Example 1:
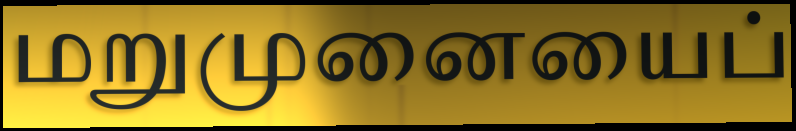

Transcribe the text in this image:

மறுமுனையைப்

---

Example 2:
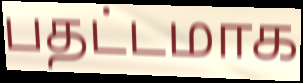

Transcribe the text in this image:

பதட்டமாக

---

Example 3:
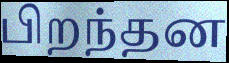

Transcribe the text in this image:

பிறந்தன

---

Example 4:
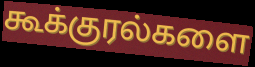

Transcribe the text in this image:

கூக்குரல்களை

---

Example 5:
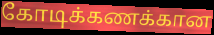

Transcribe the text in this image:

கோடிக்கணக்கான